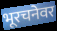
भूरचनेवर